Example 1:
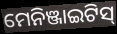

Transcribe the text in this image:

ମେନିଞ୍ଜାଇଟିସ୍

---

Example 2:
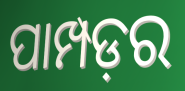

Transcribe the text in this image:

ପାମ୍ପଡ଼ର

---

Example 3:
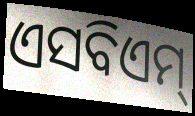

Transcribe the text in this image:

ଏସବିଏମ୍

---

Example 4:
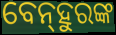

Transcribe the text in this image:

ବେନ୍‍ହୁରଙ୍କ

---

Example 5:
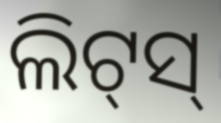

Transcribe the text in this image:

ଲିଟ୍‌ସ୍